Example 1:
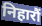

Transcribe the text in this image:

निहारौं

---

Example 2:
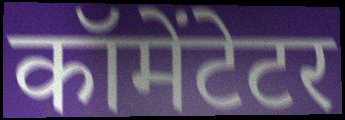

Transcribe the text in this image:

कॉमेंटेटर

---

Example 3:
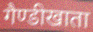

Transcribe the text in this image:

गैण्डीखाता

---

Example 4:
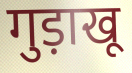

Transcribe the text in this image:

गुड़ाखू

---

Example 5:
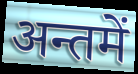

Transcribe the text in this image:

अन्तमें